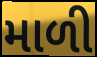
માળી